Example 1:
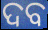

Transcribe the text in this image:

ଦବ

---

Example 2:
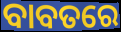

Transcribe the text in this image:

ବାବତରେ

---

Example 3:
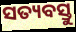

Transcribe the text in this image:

ସତ୍ୟବସ୍ତୁ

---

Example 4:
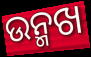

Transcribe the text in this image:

ଉନ୍ମଖ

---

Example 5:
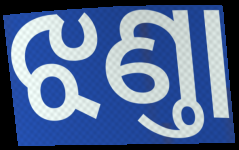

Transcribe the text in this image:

ଝଣ୍ତା